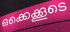
ഒക്കെക്കൂടെ